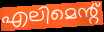
എലിമെന്റ്